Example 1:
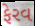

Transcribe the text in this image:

ફેરવ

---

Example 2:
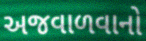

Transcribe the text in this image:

અજવાળવાનો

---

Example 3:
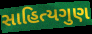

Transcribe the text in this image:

સાહિત્યગુણ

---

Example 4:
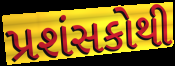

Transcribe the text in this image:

પ્રશંસકોથી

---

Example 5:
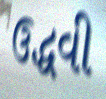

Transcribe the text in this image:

ઉદ્ધવી